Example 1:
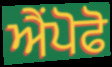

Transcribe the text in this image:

ਐਂਪੋਫੋ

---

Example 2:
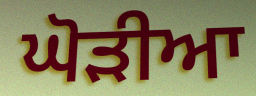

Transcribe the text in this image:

ਘੋੜੀਆ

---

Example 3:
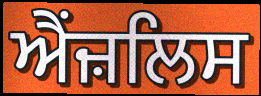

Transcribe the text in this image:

ਐਂਜ਼ਲਿਸ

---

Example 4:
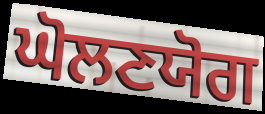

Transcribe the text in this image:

ਘੋਲਣਯੋਗ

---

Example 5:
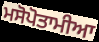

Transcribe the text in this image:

ਮਸੋਪੋਤਾਮੀਆ